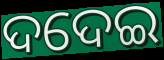
ଦଦେଇ